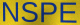
NSPE